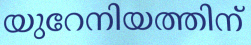
യുറേനിയത്തിന്